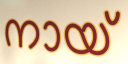
നായ്